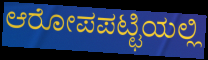
ಆರೋಪಪಟ್ಟಿಯಲ್ಲಿ